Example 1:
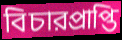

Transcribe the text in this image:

বিচারপ্রাপ্তি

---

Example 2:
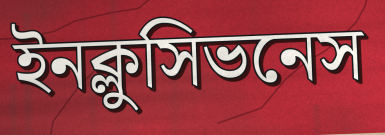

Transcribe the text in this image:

ইনক্লুসিভনেস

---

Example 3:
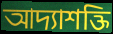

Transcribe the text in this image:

আদ্যাশক্তি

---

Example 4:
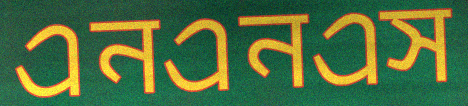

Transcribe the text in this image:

এনএনএস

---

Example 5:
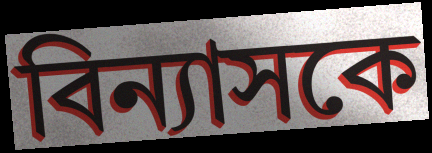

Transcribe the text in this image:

বিন্যাসকে